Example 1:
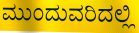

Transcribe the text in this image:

ಮುಂದುವರಿದಲ್ಲಿ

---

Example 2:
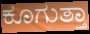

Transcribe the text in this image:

ಕೂಗುತ್ತಾ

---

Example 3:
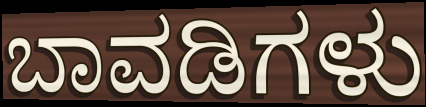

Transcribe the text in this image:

ಬಾವಡಿಗಳು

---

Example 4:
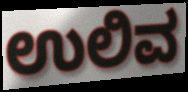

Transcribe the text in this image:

ಉಲಿವ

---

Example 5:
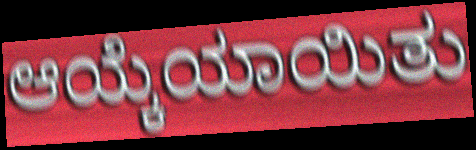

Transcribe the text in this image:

ಆಯ್ಕೆಯಾಯಿತು